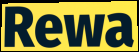
Rewa